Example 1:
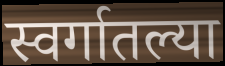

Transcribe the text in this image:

स्वर्गातल्या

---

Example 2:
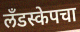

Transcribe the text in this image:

लँडस्केपचा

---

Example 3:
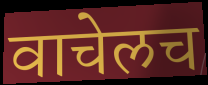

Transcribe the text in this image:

वाचेलच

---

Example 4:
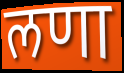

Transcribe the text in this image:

लणा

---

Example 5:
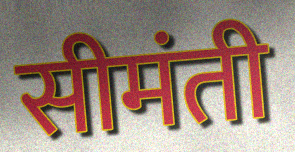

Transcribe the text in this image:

सीमंती